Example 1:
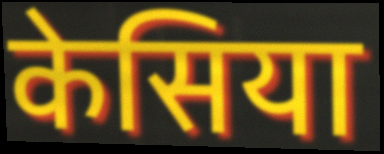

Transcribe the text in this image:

केसिया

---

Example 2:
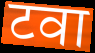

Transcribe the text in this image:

टवा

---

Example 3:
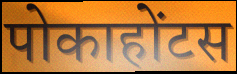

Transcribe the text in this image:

पोकाहोंटस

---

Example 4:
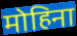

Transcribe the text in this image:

मोहिना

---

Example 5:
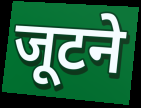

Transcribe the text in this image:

जूटने